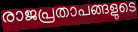
രാജപ്രതാപങ്ങളുടെ